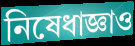
নিষেধাজ্ঞাও